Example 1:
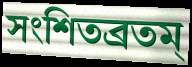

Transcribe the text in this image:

সংশিতব্রতম্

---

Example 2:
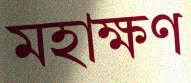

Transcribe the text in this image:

মহাক্ষণ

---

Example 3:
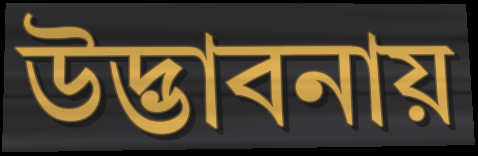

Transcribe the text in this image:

উদ্ভাবনায়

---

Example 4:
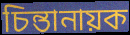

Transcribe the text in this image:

চিন্তানায়ক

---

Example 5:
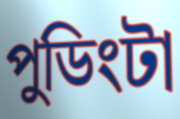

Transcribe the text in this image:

পুডিংটা